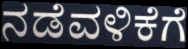
ನಡೆವಳಿಕೆಗೆ